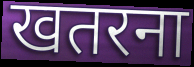
खतरना